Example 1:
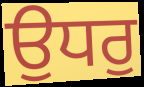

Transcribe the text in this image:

ਉਧਰੁ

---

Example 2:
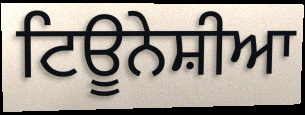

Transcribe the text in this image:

ਟਿਊਨੇਸ਼ੀਆ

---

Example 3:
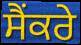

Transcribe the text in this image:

ਸੈਂਕਰੇ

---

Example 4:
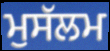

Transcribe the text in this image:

ਮੁਸੱਲਮ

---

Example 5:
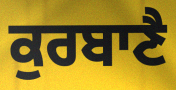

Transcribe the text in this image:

ਕੁਰਬਾਣੈ